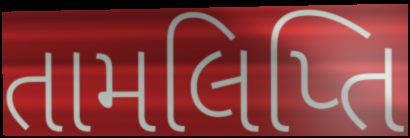
તામલિપ્તિ